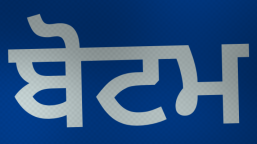
ਬੋਟਮ